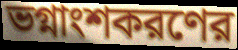
ভগ্নাংশকরণের